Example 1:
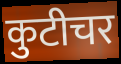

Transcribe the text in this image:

कुटीचर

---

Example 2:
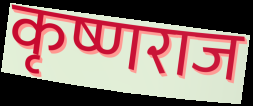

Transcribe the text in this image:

कृष्णराज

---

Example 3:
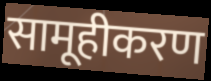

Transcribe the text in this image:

सामूहीकरण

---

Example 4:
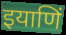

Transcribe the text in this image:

इयाणिं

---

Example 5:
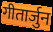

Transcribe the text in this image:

गीतार्जुन